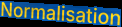
Normalisation